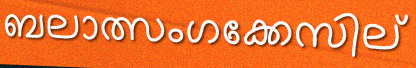
ബലാത്സംഗക്കേസില്